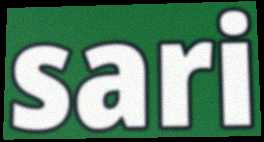
sari